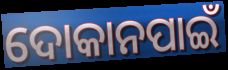
ଦୋକାନପାଇଁ